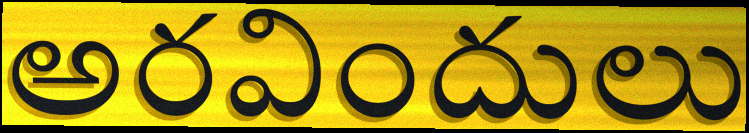
అరవిందులు